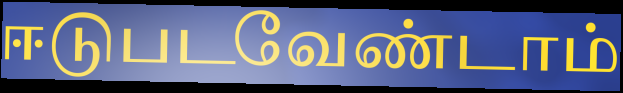
ஈடுபடவேண்டாம்